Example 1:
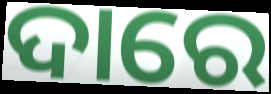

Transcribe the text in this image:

ଦାରେ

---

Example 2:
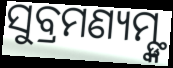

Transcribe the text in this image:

ସୁବ୍ରମଣ୍ୟମ୍ଙ୍କ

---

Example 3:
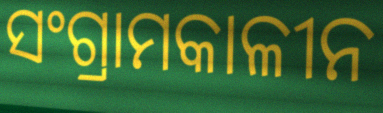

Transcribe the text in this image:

ସଂଗ୍ରାମକାଳୀନ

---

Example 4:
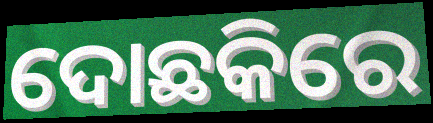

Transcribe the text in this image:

ଦୋଛକିରେ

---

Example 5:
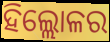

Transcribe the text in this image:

ହିଲ୍ଲୋଳର